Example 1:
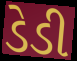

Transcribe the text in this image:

ડેડી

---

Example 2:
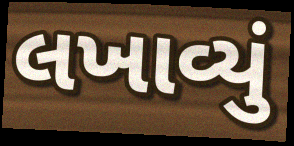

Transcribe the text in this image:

લખાવ્યું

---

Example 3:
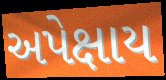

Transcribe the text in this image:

અપેક્ષાય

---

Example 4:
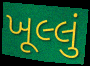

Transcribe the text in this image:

ખૂલ્લું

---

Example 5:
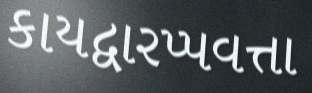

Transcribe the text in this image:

કાયદ્વારપ્પવત્તા